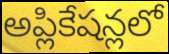
అప్లికేషన్లలో